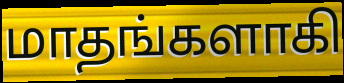
மாதங்களாகி